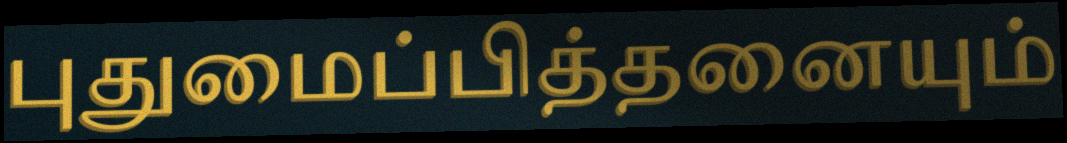
புதுமைப்பித்தனையும்